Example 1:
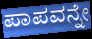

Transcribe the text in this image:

ಪಾಪವನ್ನೇ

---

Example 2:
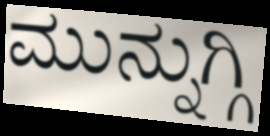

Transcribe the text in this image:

ಮುನ್ನುಗ್ಗಿ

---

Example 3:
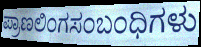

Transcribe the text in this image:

ಪ್ರಾಣಲಿಂಗಸಂಬಂಧಿಗಳು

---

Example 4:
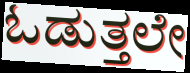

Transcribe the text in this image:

ಓಡುತ್ತಲೇ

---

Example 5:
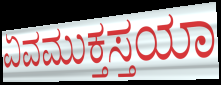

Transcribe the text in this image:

ಏವಮುಕ್ತಸ್ತಯಾ